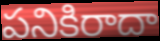
పనికిరాదా